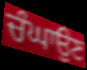
ਚੰਘਾਉਣ